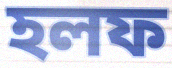
হলফ